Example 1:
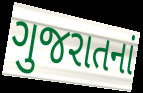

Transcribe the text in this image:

ગુજરાતનાં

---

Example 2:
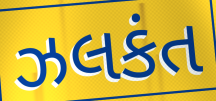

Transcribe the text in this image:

ઝલકંત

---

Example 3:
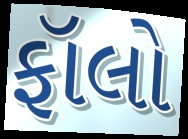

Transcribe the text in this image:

ફૉલો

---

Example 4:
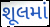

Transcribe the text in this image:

શૂલમાં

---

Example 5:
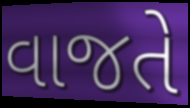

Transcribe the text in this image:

વાજતે